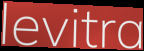
levitra